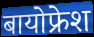
बायोफ्रेश